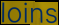
loins